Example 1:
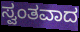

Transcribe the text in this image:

ಸ್ವಂತವಾದ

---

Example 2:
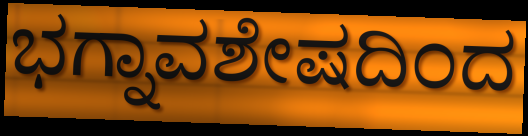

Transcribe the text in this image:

ಭಗ್ನಾವಶೇಷದಿಂದ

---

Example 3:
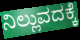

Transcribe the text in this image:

ನಿಲ್ಲುವದಕ್ಕೆ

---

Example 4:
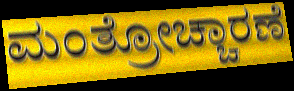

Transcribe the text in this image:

ಮಂತ್ರೋಚ್ಚಾರಣೆ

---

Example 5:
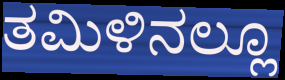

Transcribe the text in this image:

ತಮಿಳಿನಲ್ಲೂ